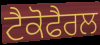
ਟੈਕੋਫੈਰਲ